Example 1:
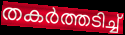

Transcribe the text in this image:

തകർത്തടിച്ച്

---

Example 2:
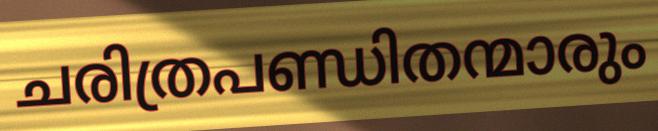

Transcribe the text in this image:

ചരിത്രപണ്ഡിതന്മാരും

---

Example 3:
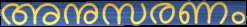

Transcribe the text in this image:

അനുസരണം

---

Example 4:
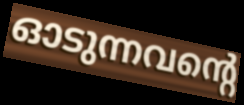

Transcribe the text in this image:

ഓടുന്നവന്റെ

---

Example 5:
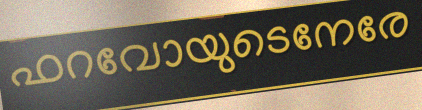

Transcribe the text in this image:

ഫറവോയുടെനേരേ